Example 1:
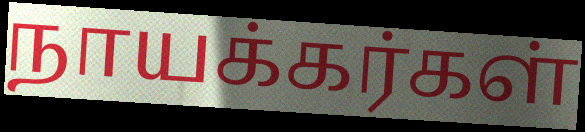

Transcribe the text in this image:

நாயக்கர்கள்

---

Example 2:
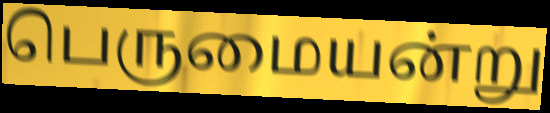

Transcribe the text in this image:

பெருமையன்று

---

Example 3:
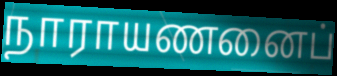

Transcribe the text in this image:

நாராயணனைப்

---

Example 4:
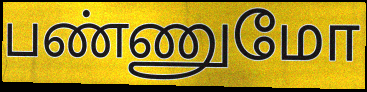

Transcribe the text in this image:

பண்ணுமோ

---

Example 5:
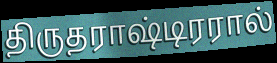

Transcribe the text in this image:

திருதராஷ்டிரரால்